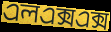
এলএক্সএক্স